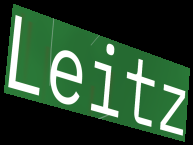
Leitz